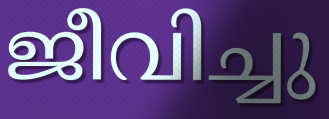
ജീവിച്ചു